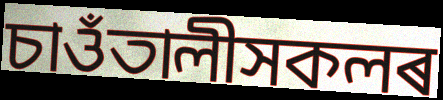
চাওঁতালীসকলৰ